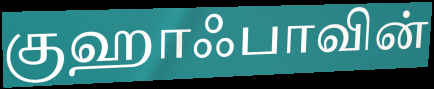
குஹாஃபாவின்